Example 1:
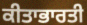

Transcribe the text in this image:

ਕੀਤਾਭਾਰਤੀ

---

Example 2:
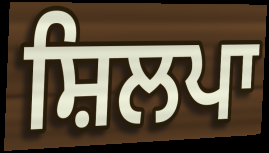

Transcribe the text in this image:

ਸ਼ਿਲਪਾ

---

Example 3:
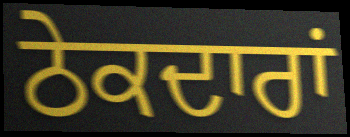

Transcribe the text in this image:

ਠੇਕਦਾਰਾਂ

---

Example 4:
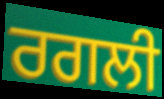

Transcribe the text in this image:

ਰਗਲੀ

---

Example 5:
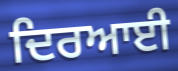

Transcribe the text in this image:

ਦਿਰਆਈ